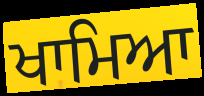
ਖਾਮਿਆ